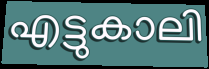
എട്ടുകാലി